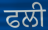
ਫਲੀ